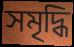
সমৃদ্ধি